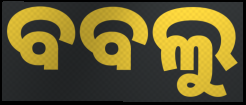
ବବଲୁ